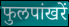
फुलपांखरें